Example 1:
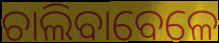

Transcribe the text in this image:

ଚାଲିବାବେଳେ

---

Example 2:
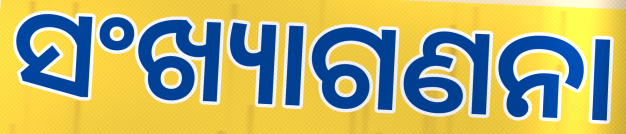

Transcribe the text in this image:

ସଂଖ୍ୟାଗଣନା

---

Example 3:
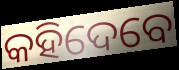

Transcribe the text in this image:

କହିଦେବେ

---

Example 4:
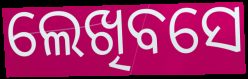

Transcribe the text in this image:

ଲେଖିବସେ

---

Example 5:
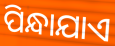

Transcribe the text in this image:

ପିନ୍ଧାଯାଏ